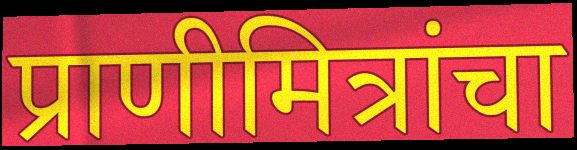
प्राणीमित्रांचा